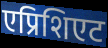
एप्रिशिएट